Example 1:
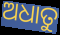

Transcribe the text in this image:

ଅଧାତୁ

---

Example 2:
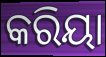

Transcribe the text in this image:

କରିୟା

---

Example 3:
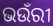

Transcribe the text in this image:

ଭଉଁରୀ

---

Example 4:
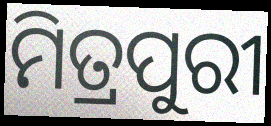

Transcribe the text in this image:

ମିତ୍ରପୁରୀ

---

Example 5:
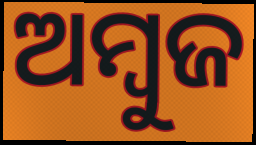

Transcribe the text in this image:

ଅମ୍ୱୁଜ